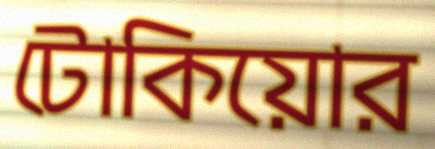
টোকিয়োর